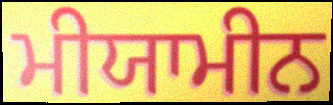
ਮੀਯਾਮੀਨ